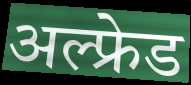
अल्फ्रेड